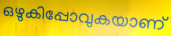
ഒഴുകിപ്പോവുകയാണ്